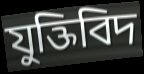
যুক্তিবিদ